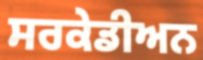
ਸਰਕੇਡੀਅਨ